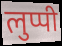
लुप्पी